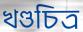
খণ্ডচিত্র